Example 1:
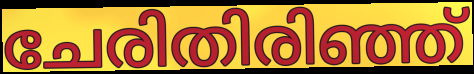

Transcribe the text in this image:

ചേരിതിരിഞ്ഞ്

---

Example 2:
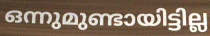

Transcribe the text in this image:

ഒന്നുമുണ്ടായിട്ടില്ല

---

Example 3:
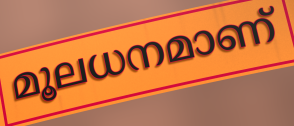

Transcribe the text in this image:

മൂലധനമാണ്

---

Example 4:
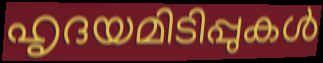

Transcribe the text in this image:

ഹൃദയമിടിപ്പുകൾ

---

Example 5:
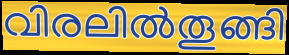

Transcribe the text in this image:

വിരലിൽതൂങ്ങി